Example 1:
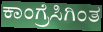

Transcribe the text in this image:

ಕಾಂಗ್ರೆಸಿಗಿಂತ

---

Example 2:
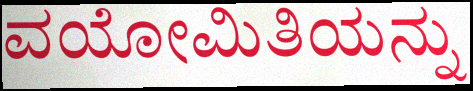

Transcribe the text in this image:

ವಯೋಮಿತಿಯನ್ನು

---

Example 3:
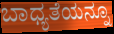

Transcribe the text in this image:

ಬಾಧ್ಯತೆಯನ್ನೂ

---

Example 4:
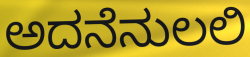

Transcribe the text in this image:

ಅದನೆನುಲಲಿ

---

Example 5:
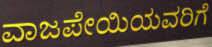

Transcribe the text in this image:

ವಾಜಪೇಯಿಯವರಿಗೆ